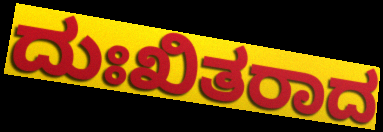
ದುಃಖಿತರಾದ